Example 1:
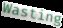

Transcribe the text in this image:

Wasting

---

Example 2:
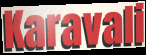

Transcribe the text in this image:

Karavali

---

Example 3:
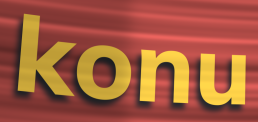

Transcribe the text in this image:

konu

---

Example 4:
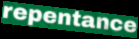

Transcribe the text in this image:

repentance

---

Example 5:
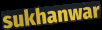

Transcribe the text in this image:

sukhanwar